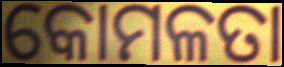
କୋମଳତା